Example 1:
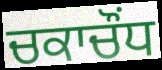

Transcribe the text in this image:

ਚਕਾਚੌਂਧ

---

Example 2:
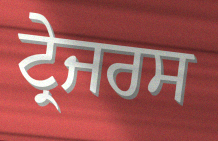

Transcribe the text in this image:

ਟ੍ਰੇਜਰਸ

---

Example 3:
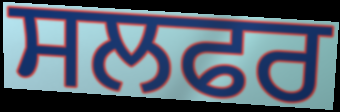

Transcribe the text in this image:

ਸਲਫਰ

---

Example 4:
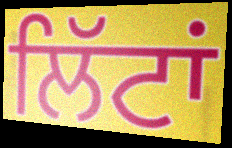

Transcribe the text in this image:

ਲਿੱਟਾਂ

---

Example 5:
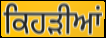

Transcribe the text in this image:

ਕਿਹੜੀਆਂ